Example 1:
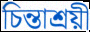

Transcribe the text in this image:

চিন্তাশ্রয়ী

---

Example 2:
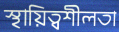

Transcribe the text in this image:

স্থায়িত্বশীলতা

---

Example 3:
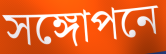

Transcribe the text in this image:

সঙ্গোপনে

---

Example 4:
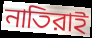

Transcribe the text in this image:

নাতিরাই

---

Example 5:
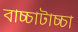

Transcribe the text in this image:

বাচ্চাটাচ্চা